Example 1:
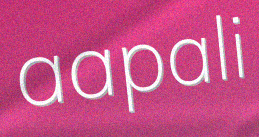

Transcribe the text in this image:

aapali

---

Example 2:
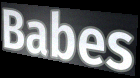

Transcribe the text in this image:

Babes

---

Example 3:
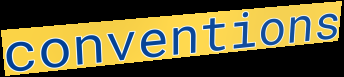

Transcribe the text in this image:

conventions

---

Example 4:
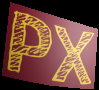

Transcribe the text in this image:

PX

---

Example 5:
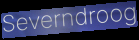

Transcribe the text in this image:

Severndroog